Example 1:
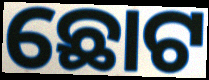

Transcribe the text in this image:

ଛୋଟ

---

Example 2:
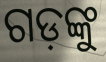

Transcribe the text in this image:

ଗଡ଼ଙ୍କୁ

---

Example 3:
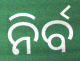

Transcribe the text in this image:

ନିର୍ବ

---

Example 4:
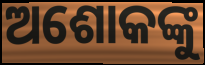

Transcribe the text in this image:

ଅଶୋକଙ୍କୁ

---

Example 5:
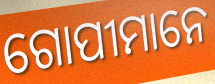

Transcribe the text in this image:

ଗୋପୀମାନେ